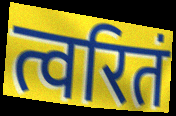
त्वरितं